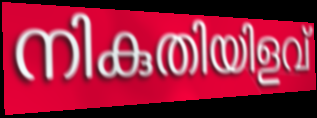
നികുതിയിളവ്